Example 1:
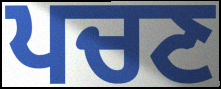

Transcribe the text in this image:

ਪਚਣ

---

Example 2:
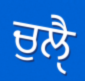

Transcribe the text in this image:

ਚੁਲੈੑ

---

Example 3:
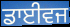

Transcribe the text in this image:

ਡਾਈਵਜ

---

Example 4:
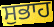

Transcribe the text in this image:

ਸੁਭਾਹ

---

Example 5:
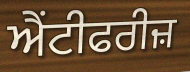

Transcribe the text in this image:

ਐਂਟੀਫਰੀਜ਼